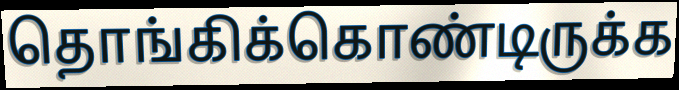
தொங்கிக்கொண்டிருக்க